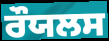
ਰੌਯਲਸ